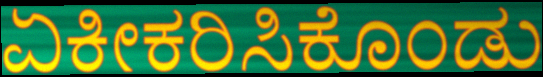
ಏಕೀಕರಿಸಿಕೊಂಡು